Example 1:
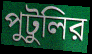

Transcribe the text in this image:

পুটুলির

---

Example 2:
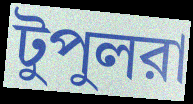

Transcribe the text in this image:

টুপুলরা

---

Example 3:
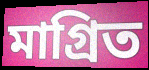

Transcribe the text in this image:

মাগ্রিত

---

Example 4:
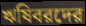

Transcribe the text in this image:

ঋষিবরদের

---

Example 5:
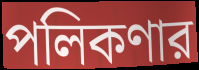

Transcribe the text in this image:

পলিকণার